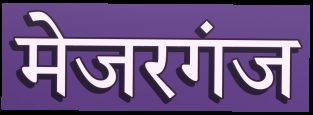
मेजरगंज